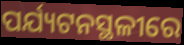
ପର୍ଯ୍ୟଟନସ୍ଥଳୀରେ